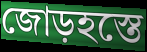
জোড়হস্তে